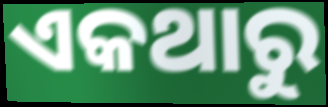
ଏକଥାରୁ